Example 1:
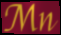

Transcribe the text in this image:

Mn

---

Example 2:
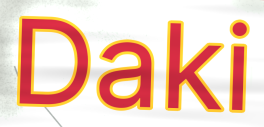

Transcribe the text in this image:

Daki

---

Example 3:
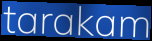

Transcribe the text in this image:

tarakam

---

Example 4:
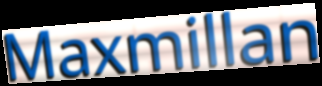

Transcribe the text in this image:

Maxmillan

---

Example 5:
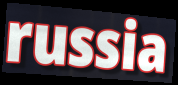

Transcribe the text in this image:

russia